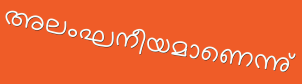
അലംഘനീയമാണെന്നു്